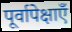
पूर्वापेक्षाएँ